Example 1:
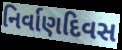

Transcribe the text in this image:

નિર્વાણદિવસ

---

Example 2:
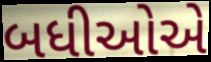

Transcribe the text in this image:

બધીઓએ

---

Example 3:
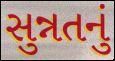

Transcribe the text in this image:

સુન્નતનું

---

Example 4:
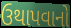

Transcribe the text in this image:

ઉથાપવાનો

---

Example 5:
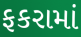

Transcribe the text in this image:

ફકરામાં